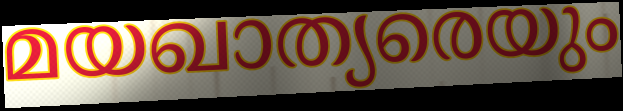
മയഖാത്യരെയും